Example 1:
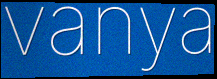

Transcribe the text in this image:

vanya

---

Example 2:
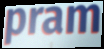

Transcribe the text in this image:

pram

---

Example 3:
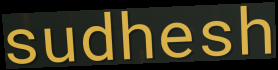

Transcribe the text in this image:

sudhesh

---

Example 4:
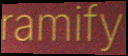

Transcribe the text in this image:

ramify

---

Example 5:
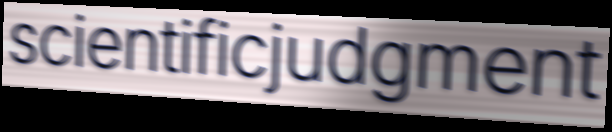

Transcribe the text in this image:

scientificjudgment